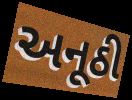
અનૂઠી